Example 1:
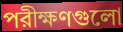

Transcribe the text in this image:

পরীক্ষণগুলো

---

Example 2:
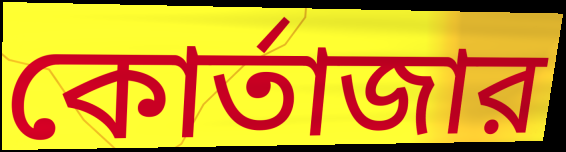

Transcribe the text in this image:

কোর্তাজার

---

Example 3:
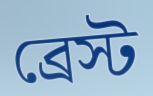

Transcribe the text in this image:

ব্রেস্ট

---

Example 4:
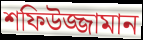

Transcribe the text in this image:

শফিউজ্জামান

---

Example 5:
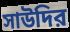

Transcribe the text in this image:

সাউদির